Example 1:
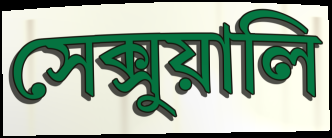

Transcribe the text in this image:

সেক্সুয়ালি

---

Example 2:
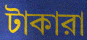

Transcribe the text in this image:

টাকারা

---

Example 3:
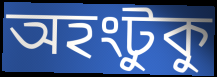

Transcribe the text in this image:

অহংটুকু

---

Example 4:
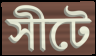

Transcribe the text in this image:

সীটে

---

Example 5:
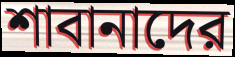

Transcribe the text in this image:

শাবানাদের